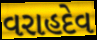
વરાહદેવ